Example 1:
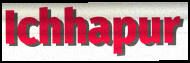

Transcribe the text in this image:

Ichhapur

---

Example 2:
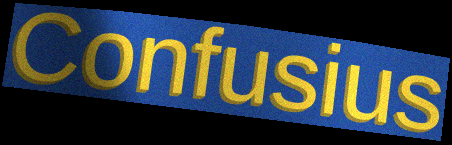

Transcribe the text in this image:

Confusius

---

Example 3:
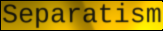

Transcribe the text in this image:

Separatism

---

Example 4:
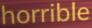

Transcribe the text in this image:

horrible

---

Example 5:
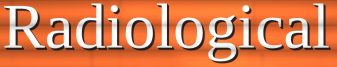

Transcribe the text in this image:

Radiological